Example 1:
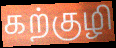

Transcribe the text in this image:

கற்குழி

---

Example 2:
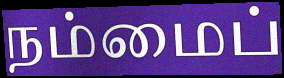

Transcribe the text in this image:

நம்மைப்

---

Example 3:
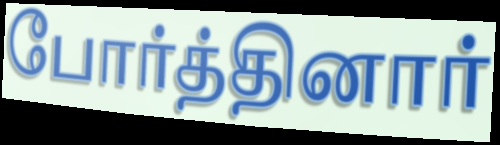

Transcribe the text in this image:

போர்த்தினார்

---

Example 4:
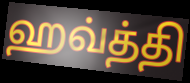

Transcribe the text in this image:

ஹவ்த்தி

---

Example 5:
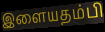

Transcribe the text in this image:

இளையதம்பி